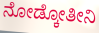
ನೋಡ್ಕೋತೀನಿ